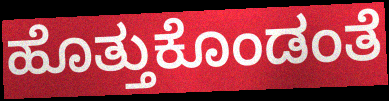
ಹೊತ್ತುಕೊಂಡಂತೆ